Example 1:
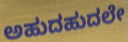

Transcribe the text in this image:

ಅಹುದಹುದಲೇ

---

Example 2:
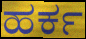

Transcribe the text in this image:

ಹರ್ಕ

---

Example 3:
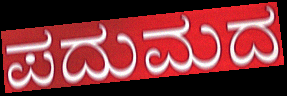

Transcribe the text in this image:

ಪದುಮದ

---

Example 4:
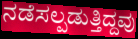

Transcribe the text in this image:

ನಡೆಸಲ್ಪಡುತ್ತಿದ್ದವು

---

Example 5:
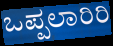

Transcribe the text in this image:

ಒಪ್ಪಲಾರಿರಿ